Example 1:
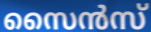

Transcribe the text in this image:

സൈൻസ്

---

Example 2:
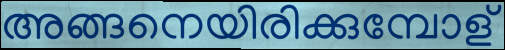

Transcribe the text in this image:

അങ്ങനെയിരിക്കുമ്പോള്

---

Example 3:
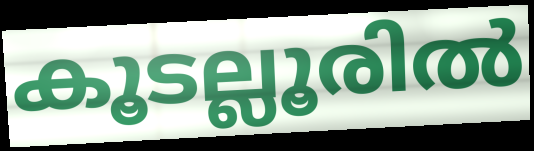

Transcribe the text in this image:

കൂടല്ലൂരിൽ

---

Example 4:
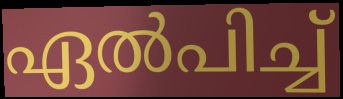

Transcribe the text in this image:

ഏൽപിച്ച്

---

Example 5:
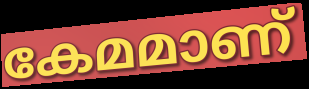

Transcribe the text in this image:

കേമമാണ്